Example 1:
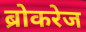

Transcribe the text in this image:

ब्रोकरेज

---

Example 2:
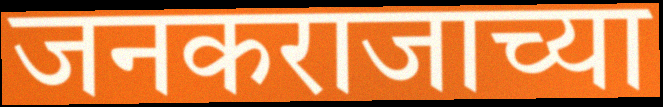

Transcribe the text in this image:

जनकराजाच्या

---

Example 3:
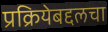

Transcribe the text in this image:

प्रक्रियेबद्दलचा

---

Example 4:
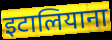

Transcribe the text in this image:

इटालियाना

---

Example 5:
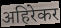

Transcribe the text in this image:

अहिरेकर